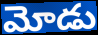
మోడు